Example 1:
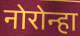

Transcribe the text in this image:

नोरोन्हा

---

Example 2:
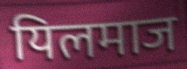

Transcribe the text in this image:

यिलमाज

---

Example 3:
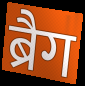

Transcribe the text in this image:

ब्रैग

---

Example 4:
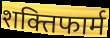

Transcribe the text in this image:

शक्तिफार्म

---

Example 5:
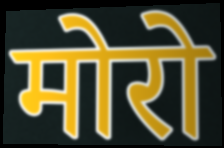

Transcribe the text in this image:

मोरो